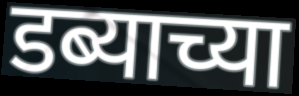
डब्याच्या